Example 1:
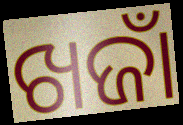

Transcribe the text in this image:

ଖଜାଁ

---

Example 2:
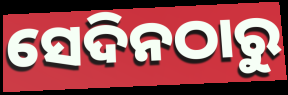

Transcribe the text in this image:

ସେଦିନଠାରୁ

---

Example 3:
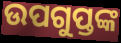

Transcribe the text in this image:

ଉପଗୁପ୍ତଙ୍କ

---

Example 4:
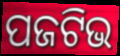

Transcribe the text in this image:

ପଜଟିଭ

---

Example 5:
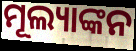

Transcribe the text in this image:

ମୂଲ୍ୟାଙ୍କନ